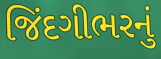
જિંદગીભરનું